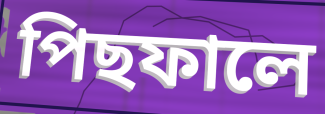
পিছফালে